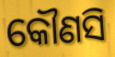
କୌଣସି